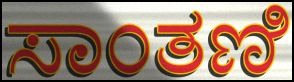
ಸಾಂತಣಿ